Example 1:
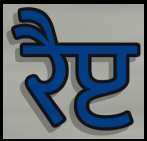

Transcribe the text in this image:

रैप्ट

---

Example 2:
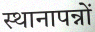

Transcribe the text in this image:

स्थानापन्नों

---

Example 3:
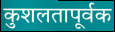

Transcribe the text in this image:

कुशलतापूर्वक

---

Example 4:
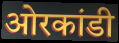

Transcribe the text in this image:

ओरकांडी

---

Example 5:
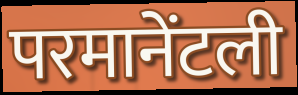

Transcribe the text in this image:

परमानेंटली